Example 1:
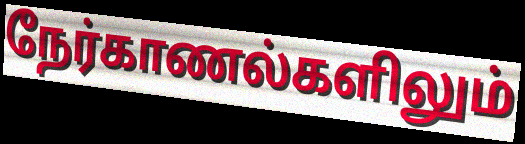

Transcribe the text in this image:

நேர்காணல்களிலும்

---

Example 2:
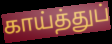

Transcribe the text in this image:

காய்த்துப்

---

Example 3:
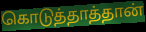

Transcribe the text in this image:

கொடுத்தாத்தான்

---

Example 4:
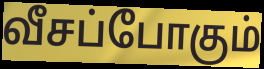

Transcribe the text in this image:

வீசப்போகும்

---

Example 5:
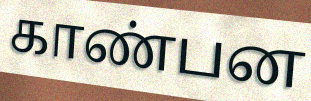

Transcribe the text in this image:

காண்பன